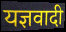
यज्ञवादी